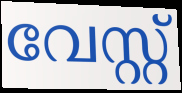
വേസ്റ്റ്